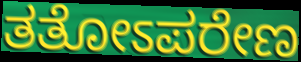
ತತೋಽಪರೇಣ